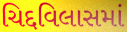
ચિદ્દવિલાસમાં